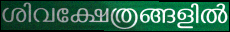
ശിവക്ഷേത്രങ്ങളിൽ